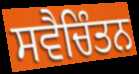
ਸਵੈਚਿੰਤਨ